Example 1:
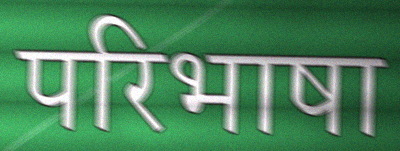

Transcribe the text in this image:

परिभाषा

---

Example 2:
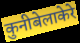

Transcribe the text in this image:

कुनीबेलाकेरे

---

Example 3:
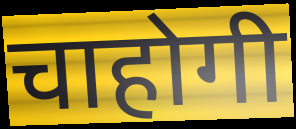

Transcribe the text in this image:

चाहोगी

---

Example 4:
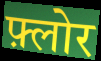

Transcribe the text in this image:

फ़्लोर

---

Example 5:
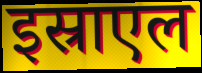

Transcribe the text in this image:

इस्राएल